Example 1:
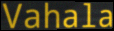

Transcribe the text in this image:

Vahala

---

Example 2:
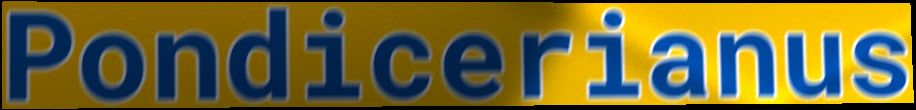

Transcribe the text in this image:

Pondicerianus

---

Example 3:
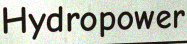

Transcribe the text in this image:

Hydropower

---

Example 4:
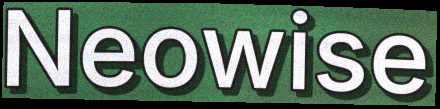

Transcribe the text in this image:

Neowise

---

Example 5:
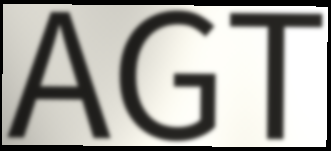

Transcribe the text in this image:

AGT